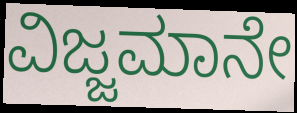
ವಿಜ್ಜಮಾನೇ